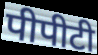
पीपीटी